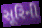
સૂરિની